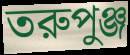
তরুপুঞ্জ